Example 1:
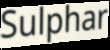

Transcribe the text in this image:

Sulphar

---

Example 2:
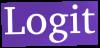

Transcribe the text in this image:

Logit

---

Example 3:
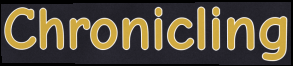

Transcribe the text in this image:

Chronicling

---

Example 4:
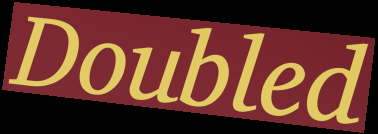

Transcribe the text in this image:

Doubled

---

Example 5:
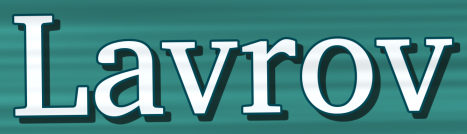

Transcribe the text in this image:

Lavrov